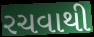
રચવાથી